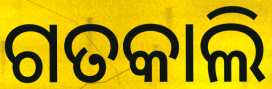
ଗତକାଲି